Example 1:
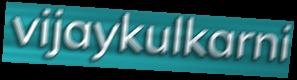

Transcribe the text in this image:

vijaykulkarni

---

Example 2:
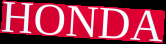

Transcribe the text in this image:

HONDA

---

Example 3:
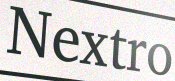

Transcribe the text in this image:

Nextro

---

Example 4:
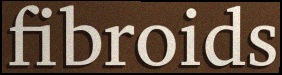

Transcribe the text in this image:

fibroids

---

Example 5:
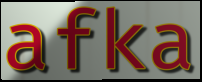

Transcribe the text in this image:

afka